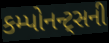
કમ્પોનન્ટ્સની